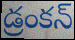
డ్రంకన్